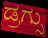
ಡ್ರಗ್ಸು